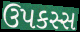
ઉપકસ્સ